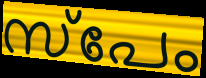
സ്പേം